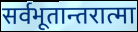
सर्वभूतान्तरात्मा